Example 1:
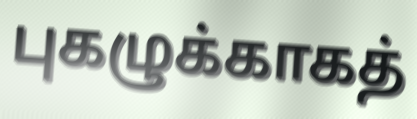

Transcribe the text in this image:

புகழுக்காகத்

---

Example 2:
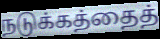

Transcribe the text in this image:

நடுக்கத்தைத்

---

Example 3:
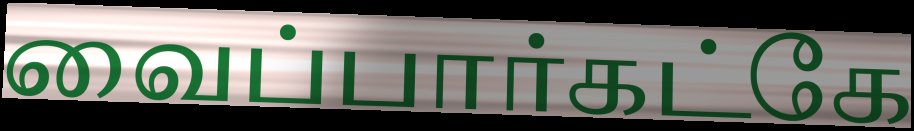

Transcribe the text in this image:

வைப்பார்கட்கே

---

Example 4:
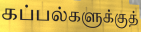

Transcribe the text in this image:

கப்பல்களுக்குத்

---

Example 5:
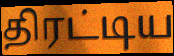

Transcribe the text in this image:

திரட்டிய